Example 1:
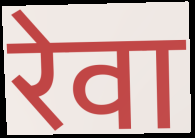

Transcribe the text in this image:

रेवा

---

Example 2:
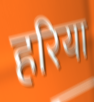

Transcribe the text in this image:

हरिया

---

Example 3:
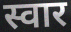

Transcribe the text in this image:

स्वार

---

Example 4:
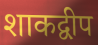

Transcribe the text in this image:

शाकद्वीप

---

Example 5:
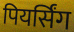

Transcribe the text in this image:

पियर्सिंग